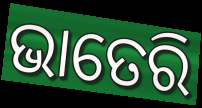
ଭାତେରି